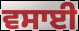
ਵਸਾਈ